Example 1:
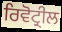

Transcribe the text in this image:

ਰਿਵੋਟ੍ਰੀਲ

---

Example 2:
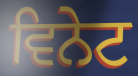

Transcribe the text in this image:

ਵਿਨੇਟ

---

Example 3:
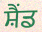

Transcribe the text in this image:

ਸ਼ੈਂਡ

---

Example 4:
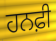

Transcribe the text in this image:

ਹਨਫ਼ੀ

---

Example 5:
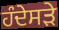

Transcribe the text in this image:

ਹੰਦੇਸੜੇ